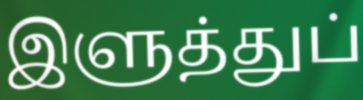
இளுத்துப்